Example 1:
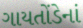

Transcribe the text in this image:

ગાયતોંડેનાં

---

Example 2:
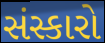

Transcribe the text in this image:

સંસ્કારો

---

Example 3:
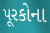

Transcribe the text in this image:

પૂરકોના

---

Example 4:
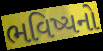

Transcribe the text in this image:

ભવિષ્યનો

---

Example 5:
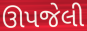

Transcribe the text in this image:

ઊપજેલી